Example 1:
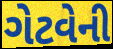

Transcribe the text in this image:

ગેટવેની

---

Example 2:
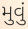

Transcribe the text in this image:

મુવું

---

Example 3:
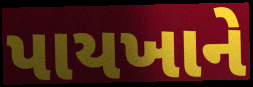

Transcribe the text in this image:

પાયખાને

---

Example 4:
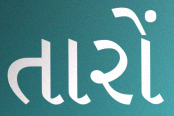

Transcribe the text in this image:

તારોં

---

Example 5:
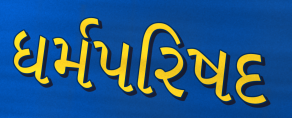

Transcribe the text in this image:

ધર્મપરિષદ